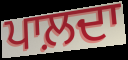
ਪਾਲ਼ਦਾ